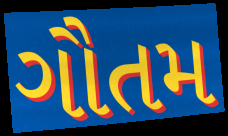
ગૌતમ